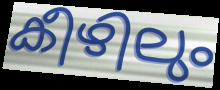
കീഴിലും